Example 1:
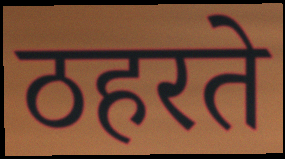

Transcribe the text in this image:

ठहरते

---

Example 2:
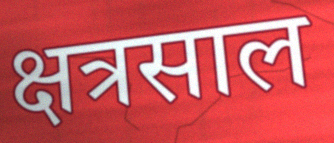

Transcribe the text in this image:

क्षत्रसाल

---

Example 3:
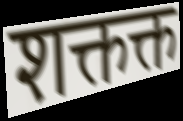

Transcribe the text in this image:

शक्तक्त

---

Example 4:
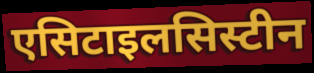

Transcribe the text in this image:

एसिटाइलसिस्टीन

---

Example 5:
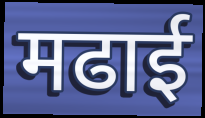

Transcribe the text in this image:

मढाई